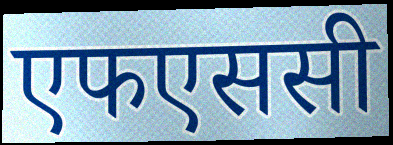
एफएससी